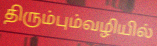
திரும்பும்வழியில்